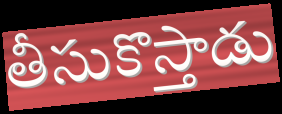
తీసుకొస్తాడు